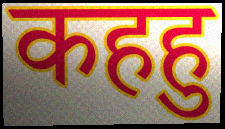
कहहु